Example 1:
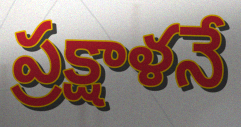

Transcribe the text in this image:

ప్రక్షాళనే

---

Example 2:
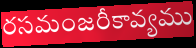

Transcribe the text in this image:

రసమంజరీకావ్యము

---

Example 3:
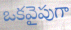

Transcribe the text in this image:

ఒకవైపుగా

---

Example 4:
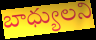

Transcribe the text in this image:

బాధ్యులని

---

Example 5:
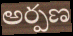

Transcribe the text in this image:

అర్పణ